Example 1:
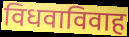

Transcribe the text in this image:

विधवाविवाह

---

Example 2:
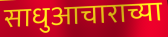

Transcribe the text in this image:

साधुआचाराच्या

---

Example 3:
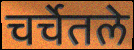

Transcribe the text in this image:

चर्चेतले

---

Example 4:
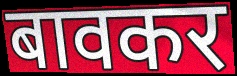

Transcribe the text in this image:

बावकर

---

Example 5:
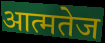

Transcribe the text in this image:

आत्मतेज